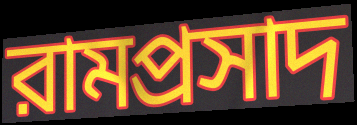
রামপ্রসাদ